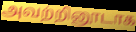
அவற்றினூடாக